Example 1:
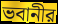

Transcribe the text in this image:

ভবানীর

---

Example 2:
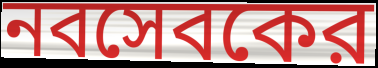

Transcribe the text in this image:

নবসেবকের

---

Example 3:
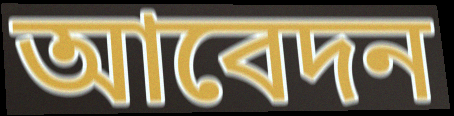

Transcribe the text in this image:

আবেদন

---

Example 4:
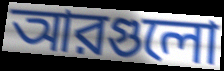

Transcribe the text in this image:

আরগুলো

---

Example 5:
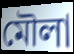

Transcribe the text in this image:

মৌলা